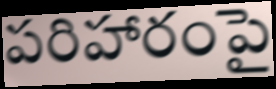
పరిహారంపై